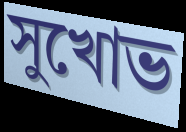
সুখোভ